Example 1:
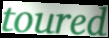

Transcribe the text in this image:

toured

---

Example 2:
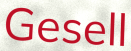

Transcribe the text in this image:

Gesell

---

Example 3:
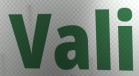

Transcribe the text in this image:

Vali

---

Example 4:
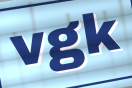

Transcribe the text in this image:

vgk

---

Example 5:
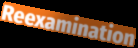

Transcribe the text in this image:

Reexamination